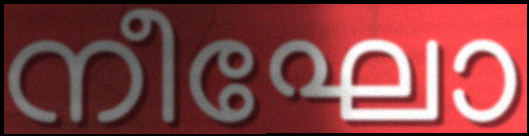
നീഘോ